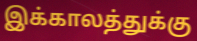
இக்காலத்துக்கு